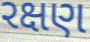
રક્ષણ